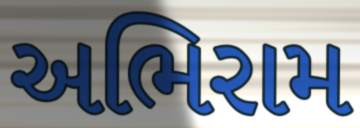
અભિરામ